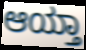
ಆಯ್ತಾ